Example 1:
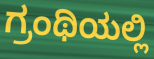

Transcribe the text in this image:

ಗ್ರಂಥಿಯಲ್ಲಿ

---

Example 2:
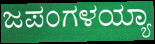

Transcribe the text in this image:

ಜಪಂಗಳಯ್ಯಾ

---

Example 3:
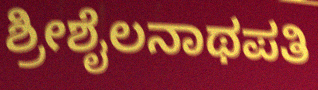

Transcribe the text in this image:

ಶ್ರೀಶೈಲನಾಥಪತಿ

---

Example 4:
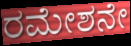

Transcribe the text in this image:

ರಮೇಶನೇ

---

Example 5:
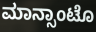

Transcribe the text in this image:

ಮಾನ್ಸಾಂಟೊ